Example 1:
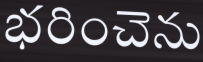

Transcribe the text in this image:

భరించెను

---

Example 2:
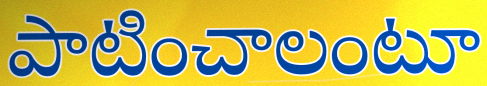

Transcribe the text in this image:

పాటించాలంటూ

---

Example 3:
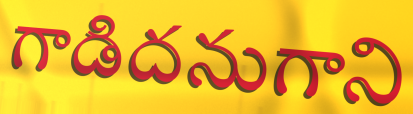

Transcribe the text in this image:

గాడిదనుగాని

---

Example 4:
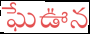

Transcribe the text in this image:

ఘేఊన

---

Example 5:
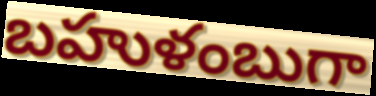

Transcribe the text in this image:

బహుళంబుగా